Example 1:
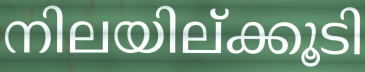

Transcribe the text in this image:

നിലയില്ക്കൂടി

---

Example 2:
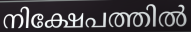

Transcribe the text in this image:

നിക്ഷേപത്തിൽ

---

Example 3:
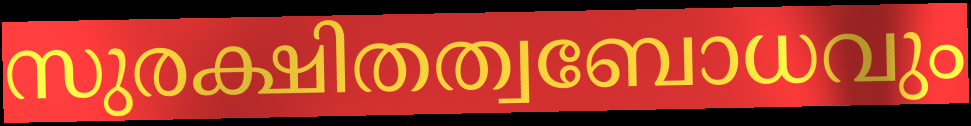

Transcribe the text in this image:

സുരക്ഷിതത്വബോധവും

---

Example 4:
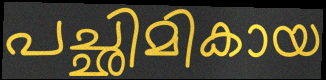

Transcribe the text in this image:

പച്ഛിമികായ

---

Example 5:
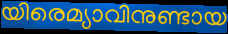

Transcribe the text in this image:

യിരെമ്യാവിനുണ്ടായ